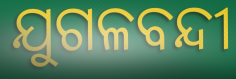
ଯୁଗଳବନ୍ଦୀ